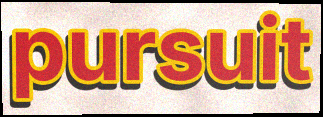
pursuit